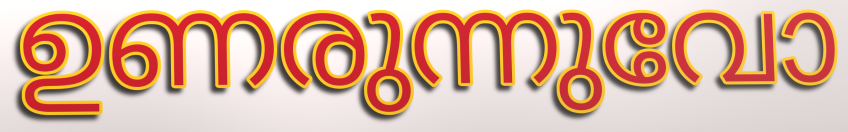
ഉണരുന്നുവോ